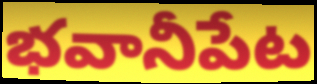
భవానీపేట